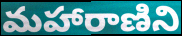
మహారాణిని